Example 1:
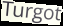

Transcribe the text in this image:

Turgot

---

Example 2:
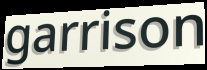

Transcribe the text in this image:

garrison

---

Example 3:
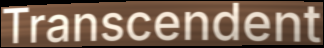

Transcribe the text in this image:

Transcendent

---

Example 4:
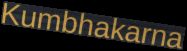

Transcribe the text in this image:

Kumbhakarna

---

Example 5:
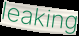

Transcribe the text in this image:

leaking